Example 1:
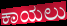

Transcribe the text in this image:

ಕಾಯಲು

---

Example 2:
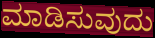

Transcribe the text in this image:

ಮಾಡಿಸುವುದು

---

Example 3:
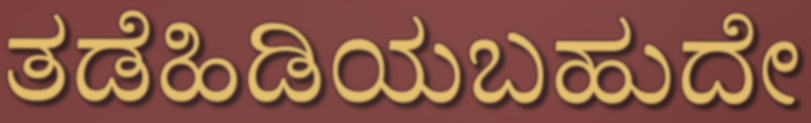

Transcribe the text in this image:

ತಡೆಹಿಡಿಯಬಹುದೇ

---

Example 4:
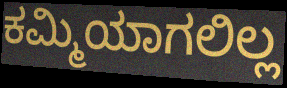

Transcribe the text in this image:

ಕಮ್ಮಿಯಾಗಲಿಲ್ಲ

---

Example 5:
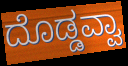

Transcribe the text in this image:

ದೊಡ್ಡವ್ವಾ